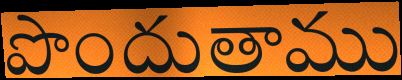
పొందుతాము